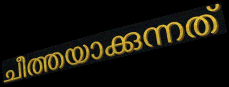
ചീത്തയാക്കുന്നത്